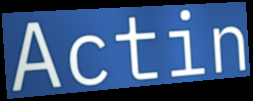
Actin